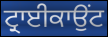
ਟ੍ਰਾਈਕਾਉਂਟ